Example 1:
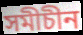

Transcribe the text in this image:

সমীচীন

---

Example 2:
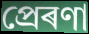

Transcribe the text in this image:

প্ৰেৰণা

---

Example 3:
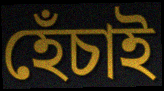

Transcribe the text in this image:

হেঁচাই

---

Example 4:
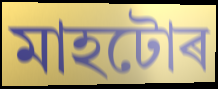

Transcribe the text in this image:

মাহটোৰ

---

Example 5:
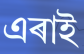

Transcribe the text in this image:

এৰাই